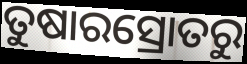
ତୁଷାରସ୍ରୋତରୁ